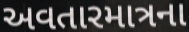
અવતારમાત્રના